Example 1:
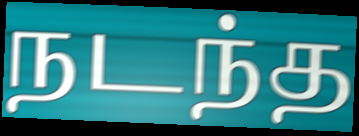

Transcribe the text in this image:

நடந்த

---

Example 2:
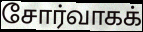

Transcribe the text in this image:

சோர்வாகக்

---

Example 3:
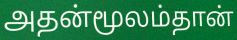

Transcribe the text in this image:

அதன்மூலம்தான்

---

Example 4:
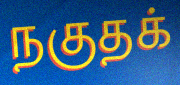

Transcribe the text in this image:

நகுதக்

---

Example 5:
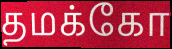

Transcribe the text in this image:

தமக்கோ